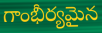
గాంభీర్యమైన